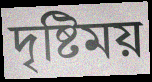
দৃষ্টিময়